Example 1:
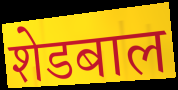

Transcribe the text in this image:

शेडबाल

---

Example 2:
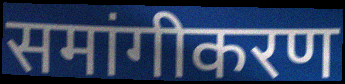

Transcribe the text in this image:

समांगीकरण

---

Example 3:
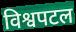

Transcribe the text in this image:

विश्वपटल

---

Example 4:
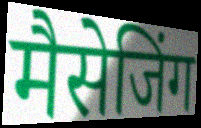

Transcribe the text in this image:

मैसेजिंग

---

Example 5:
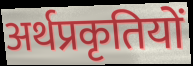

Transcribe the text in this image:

अर्थप्रकृतियों